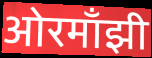
ओरमाँझी